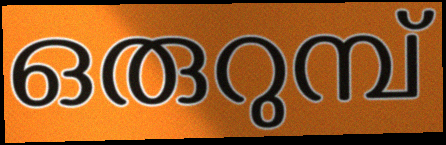
ഒരുറുമ്പ്